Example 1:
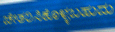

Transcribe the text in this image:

ಚೇತರಿಸಿಕೊಳ್ಳಬಹುದು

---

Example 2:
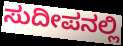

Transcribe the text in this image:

ಸುದೀಪನಲ್ಲಿ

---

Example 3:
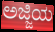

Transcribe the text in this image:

ಅಜ್ಜಿಯ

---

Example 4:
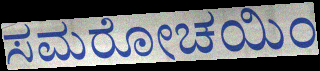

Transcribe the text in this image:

ಸಮರೋಚಯಿಂ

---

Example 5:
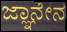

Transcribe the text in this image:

ಜ್ಞಾನೇನ